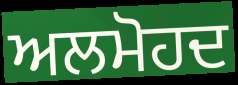
ਅਲਮੋਹਦ